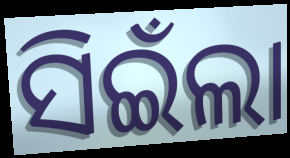
ସିଇଁଲା